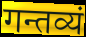
गन्तव्यं